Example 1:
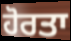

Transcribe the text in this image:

ਹੋਰਤਾ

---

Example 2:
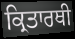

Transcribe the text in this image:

ਕ੍ਰਿਤਾਰਥੀ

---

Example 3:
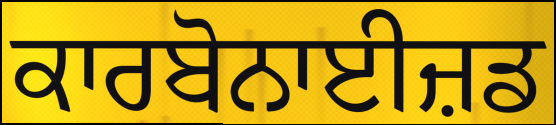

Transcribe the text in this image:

ਕਾਰਬੋਨਾਈਜ਼ਡ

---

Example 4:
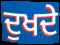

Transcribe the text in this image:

ਦੁਖਦੇ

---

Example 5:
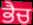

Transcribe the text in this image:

ਭੈਚ